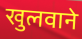
खुलवाने